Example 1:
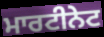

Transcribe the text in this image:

ਮਾਰਟੀਨੇਟ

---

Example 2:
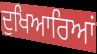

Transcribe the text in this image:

ਦੁਖਿਆਰਿਆਂ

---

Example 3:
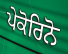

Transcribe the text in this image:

ਪੇਕੋਰਿਨੋ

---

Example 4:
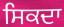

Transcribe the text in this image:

ਸਿਕਦਾ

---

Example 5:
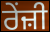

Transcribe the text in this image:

ਰੇਂਜ਼ੀ